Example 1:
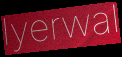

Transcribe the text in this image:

Iyerwal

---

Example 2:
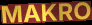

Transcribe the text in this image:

MAKRO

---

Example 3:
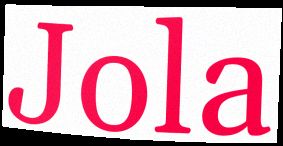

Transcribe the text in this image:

Jola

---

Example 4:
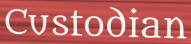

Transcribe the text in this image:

Custodian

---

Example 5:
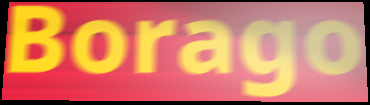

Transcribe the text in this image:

Borago